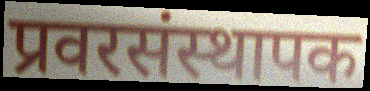
प्रवरसंस्थापक